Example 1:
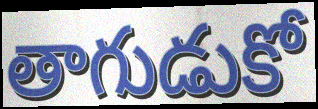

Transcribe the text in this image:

తాగుడుకో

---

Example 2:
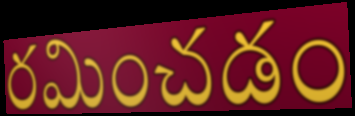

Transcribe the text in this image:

రమించడం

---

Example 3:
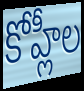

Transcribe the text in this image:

కోహ్లీల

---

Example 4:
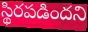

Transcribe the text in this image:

స్థిరపడిందని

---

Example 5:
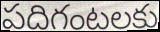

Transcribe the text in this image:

పదిగంటలకు